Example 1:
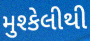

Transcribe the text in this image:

મુશ્કેલીથી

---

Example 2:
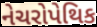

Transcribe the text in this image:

નેચરોપેથિક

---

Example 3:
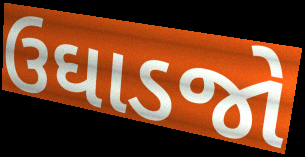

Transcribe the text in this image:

ઉઘાડજો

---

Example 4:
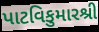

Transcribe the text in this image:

પાટવિકુમારશ્રી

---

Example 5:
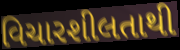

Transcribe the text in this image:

વિચારશીલતાથી